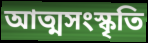
আত্মসংস্কৃতি